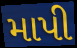
માપી